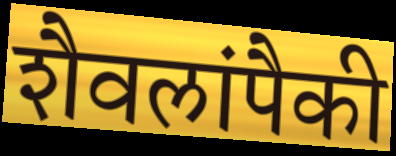
शैवलांपैकी